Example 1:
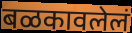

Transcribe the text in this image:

बळकावलेलं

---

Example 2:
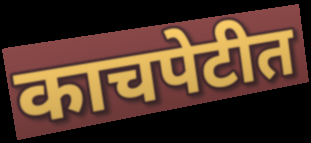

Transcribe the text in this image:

काचपेटीत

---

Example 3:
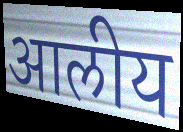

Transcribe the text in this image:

आलीय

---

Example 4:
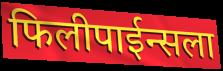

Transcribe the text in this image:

फिलीपाईन्सला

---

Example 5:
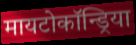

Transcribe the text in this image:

मायटोकॉन्ड्रिया